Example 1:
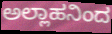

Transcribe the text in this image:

ಅಲ್ಲಾಹನಿಂದ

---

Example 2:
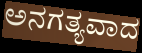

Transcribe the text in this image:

ಅನಗತ್ಯವಾದ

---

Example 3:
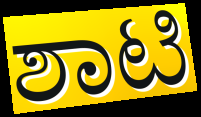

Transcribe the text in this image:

ಶಾಟಿ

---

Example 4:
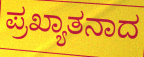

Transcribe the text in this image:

ಪ್ರಖ್ಯಾತನಾದ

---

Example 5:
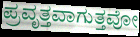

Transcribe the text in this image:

ಪ್ರವೃತ್ತವಾಗುತ್ತವೋ